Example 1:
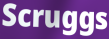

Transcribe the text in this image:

Scruggs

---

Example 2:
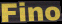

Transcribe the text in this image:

Fino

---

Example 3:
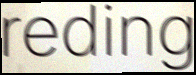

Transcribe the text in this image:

reding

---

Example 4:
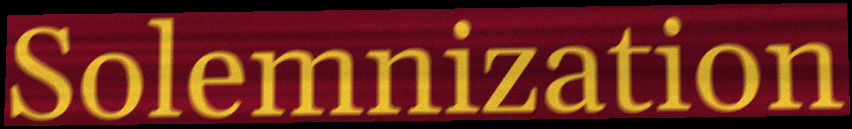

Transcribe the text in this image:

Solemnization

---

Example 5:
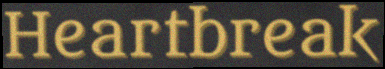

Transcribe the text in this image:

Heartbreak